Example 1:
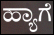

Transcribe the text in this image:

ಹ್ಯಾಗೆ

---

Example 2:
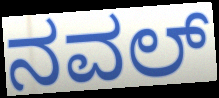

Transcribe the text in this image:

ನವಲ್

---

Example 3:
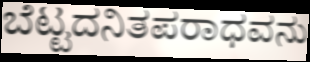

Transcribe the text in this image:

ಬೆಟ್ಟದನಿತಪರಾಧವನು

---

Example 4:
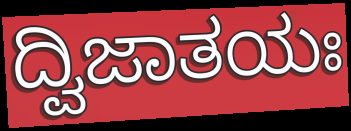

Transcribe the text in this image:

ದ್ವಿಜಾತಯಃ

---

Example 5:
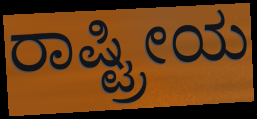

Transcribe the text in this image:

ರಾಷ್ಟ್ರೀಯ